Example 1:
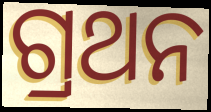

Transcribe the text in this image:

ଗ୍ରଥନ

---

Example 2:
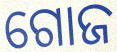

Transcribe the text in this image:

ଗୋଜ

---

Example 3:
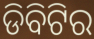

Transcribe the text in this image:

ଡିବିଟିର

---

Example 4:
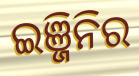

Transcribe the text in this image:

ଇଞ୍ଜିନିର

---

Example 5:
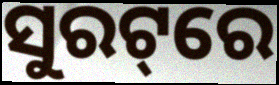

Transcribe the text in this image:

ସୁରଟ୍‌ରେ